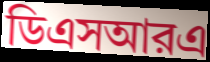
ডিএসআরএ